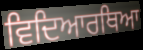
ਵਿਦਿਆਰਥਿਆ